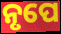
ନୃପେ